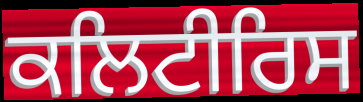
ਕਲਿਟੀਰਿਸ